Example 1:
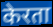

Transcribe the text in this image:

केरता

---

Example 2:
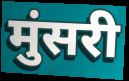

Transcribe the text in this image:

मुंसरी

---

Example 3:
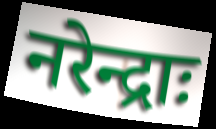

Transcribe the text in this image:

नरेन्द्राः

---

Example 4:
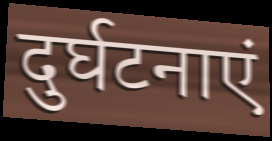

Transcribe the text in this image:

दुर्घटनाएं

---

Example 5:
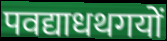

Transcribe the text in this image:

पवद्याधथगयों